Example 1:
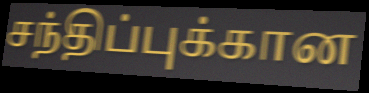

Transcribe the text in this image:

சந்திப்புக்கான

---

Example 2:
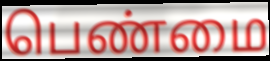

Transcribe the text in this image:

பெண்மை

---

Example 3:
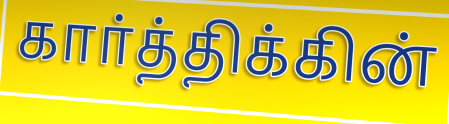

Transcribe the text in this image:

கார்த்திக்கின்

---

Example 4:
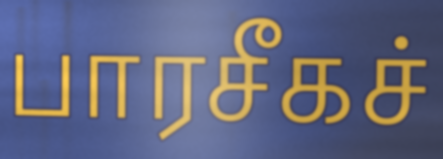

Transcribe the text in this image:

பாரசீகச்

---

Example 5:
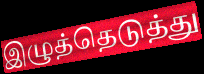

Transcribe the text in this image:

இழுத்தெடுத்து